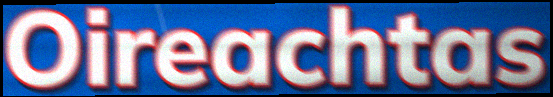
Oireachtas